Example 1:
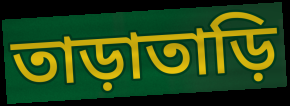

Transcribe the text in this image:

তাড়াতাড়ি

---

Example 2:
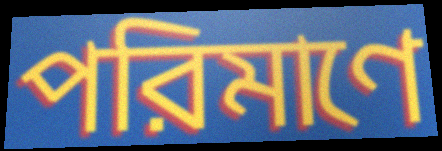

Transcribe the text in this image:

পরিমাণে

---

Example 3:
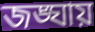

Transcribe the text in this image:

জঙ্ঘায়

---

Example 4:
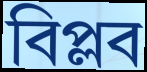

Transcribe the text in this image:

বিপ্লব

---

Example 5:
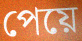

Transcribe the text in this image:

পেয়ে